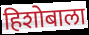
हिशोबाला